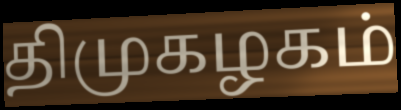
திமுகழகம்